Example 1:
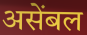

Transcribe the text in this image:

असेंबल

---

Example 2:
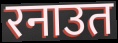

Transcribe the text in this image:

रनाउत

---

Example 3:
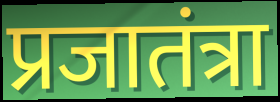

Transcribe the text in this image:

प्रजातंत्रा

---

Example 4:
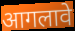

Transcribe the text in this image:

आगलावे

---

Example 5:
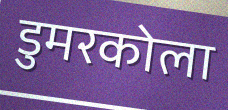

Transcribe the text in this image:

डुमरकोला